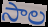
సాల